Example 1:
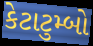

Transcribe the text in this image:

કેટાટુમ્બો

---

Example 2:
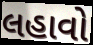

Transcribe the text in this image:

લહાવો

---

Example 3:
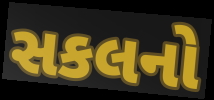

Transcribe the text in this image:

સકલનો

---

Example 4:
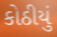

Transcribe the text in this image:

કોઠીયું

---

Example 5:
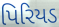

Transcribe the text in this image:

પિરિયડ